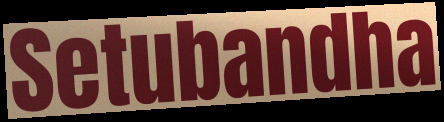
Setubandha